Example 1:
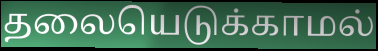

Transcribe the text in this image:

தலையெடுக்காமல்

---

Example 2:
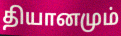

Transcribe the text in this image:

தியானமும்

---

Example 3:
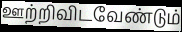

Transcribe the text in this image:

ஊற்றிவிடவேண்டும்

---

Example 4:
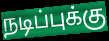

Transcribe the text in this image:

நடிப்புக்கு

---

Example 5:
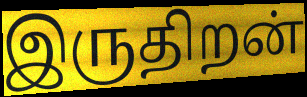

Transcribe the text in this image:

இருதிறன்